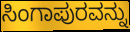
ಸಿಂಗಾಪುರವನ್ನು